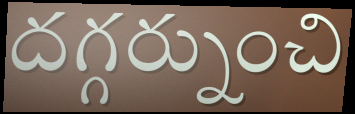
దగ్గర్నుంచి